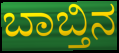
ಬಾಬ್ತಿನ